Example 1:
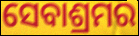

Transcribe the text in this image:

ସେବାଶ୍ରମର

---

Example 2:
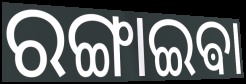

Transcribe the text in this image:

ରଙ୍ଗାଇଵା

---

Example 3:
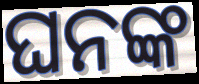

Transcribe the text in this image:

ଘନଙ୍କ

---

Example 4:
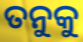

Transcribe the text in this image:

ତନୁକୁ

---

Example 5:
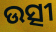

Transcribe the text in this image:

ଉତ୍ସୀ